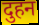
दुहन